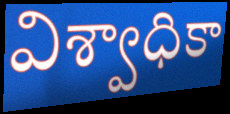
విశ్వాధికా